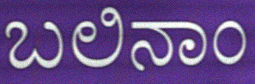
ಬಲಿನಾಂ